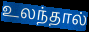
உலந்தால்